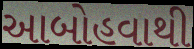
આબોહવાથી